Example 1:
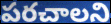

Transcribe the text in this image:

పరచాలని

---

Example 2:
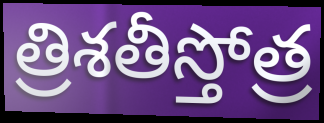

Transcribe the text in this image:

త్రిశతీస్తోత్ర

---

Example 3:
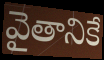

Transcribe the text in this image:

వైతానికే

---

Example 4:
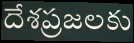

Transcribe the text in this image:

దేశప్రజలకు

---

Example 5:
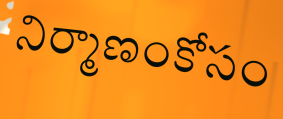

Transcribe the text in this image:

నిర్మాణంకోసం